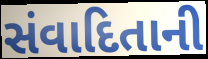
સંવાદિતાની